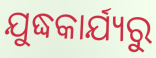
ଯୁଦ୍ଧକାର୍ଯ୍ୟରୁ